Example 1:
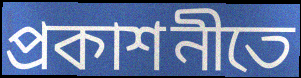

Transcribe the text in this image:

প্রকাশনীতে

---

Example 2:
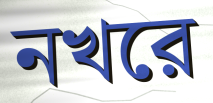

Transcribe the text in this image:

নখরে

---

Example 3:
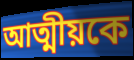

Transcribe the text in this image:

আত্মীয়কে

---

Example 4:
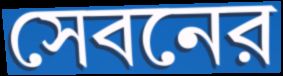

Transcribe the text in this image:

সেবনের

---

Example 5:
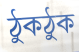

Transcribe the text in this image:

ঠুকঠুক